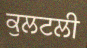
ਕੁਲਟਲੀ